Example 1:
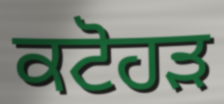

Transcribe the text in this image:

ਕਟੋਹੜ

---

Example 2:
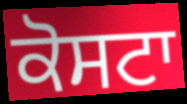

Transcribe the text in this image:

ਕੋਸਟਾ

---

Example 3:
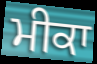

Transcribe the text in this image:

ਮੀਕਾ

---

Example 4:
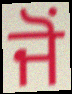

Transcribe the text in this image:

ਜੋਂ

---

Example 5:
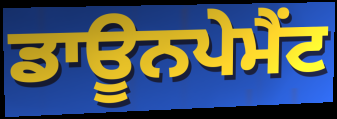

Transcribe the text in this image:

ਡਾਊਨਪੇਮੈਂਟ